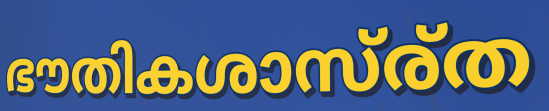
ഭൗതികശാസ്ര്ത